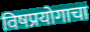
विषप्रयोगाचा